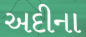
અદીના